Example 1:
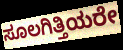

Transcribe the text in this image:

ಸೂಲಗಿತ್ತಿಯರೇ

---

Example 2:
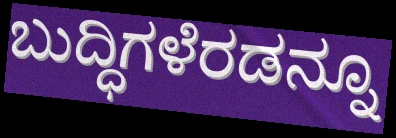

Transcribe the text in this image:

ಬುದ್ಧಿಗಳೆರಡನ್ನೂ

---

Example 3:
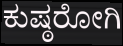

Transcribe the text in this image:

ಕುಷ್ಠರೋಗಿ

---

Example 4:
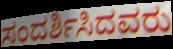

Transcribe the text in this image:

ಸಂದರ್ಶಿಸಿದವರು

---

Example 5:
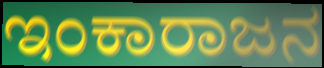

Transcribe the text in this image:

ಇಂಕಾರಾಜನ